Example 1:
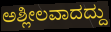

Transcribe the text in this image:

ಅಶ್ಲೀಲವಾದದ್ದು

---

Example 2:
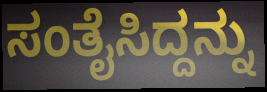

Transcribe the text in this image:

ಸಂತೈಸಿದ್ದನ್ನು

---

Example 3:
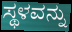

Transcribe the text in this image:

ಸ್ಥಳವನ್ನು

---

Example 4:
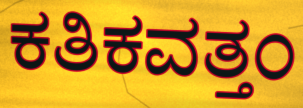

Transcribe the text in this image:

ಕತಿಕವತ್ತಂ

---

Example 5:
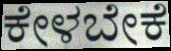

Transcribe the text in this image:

ಕೇಳಬೇಕೆ